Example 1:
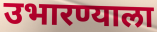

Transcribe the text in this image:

उभारण्याला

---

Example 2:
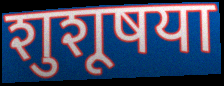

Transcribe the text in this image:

शुश्रूषया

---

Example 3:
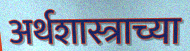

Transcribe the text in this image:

अर्थशास्त्राच्या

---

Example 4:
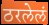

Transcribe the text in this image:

ठरलेलं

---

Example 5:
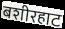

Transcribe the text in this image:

बशीरहाट